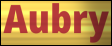
Aubry